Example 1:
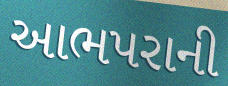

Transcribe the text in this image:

આભપરાની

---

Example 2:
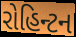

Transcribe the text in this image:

રોહિન્ટન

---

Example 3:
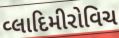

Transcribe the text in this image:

વ્લાદિમીરોવિચ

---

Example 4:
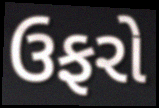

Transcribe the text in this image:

ઉફરો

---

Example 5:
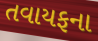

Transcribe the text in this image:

તવાયફના